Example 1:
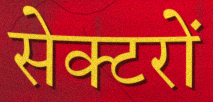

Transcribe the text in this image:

सेक्टरों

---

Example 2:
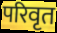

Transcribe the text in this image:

परिवृत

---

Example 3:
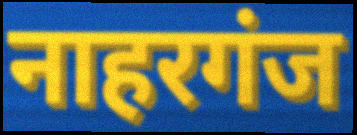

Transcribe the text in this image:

नाहरगंज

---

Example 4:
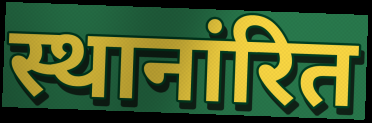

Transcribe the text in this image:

स्थानांरित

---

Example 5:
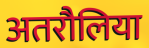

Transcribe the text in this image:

अतरौलिया